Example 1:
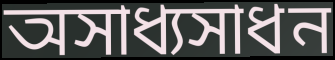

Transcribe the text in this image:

অসাধ্যসাধন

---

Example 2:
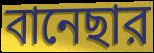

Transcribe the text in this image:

বানেছার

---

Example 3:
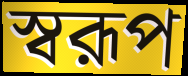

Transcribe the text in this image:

স্বরূপ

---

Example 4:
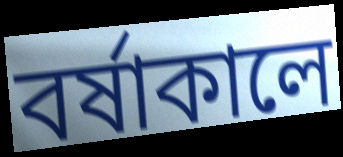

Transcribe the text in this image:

বর্ষাকালে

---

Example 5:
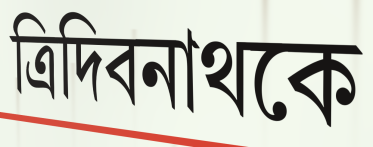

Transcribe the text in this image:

ত্রিদিবনাথকে